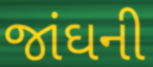
જાંઘની